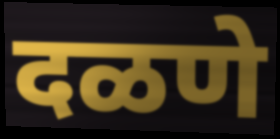
दळणे